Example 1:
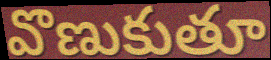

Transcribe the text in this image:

వొణుకుతూ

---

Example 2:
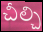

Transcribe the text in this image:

చీల్చి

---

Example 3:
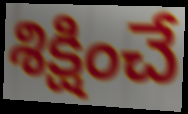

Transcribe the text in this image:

శిక్షించే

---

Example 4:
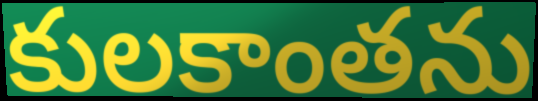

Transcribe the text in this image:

కులకాంతను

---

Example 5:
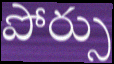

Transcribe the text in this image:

పోర్సు